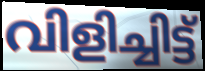
വിളിച്ചിട്ട്